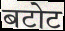
बटोट